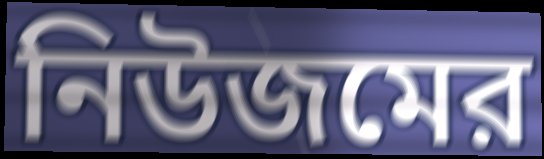
নিউজমের